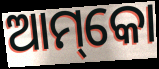
ଆମ୍‌କୋ